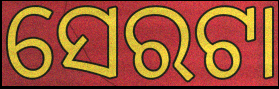
ସେରଟା